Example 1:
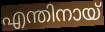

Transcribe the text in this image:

എന്തിനായ്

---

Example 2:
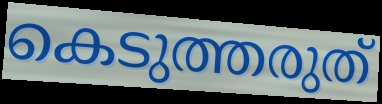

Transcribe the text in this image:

കെടുത്തരുത്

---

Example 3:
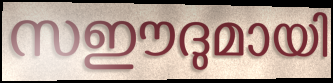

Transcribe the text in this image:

സഈദുമായി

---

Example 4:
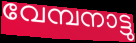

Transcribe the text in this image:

വേമ്പനാട്ടു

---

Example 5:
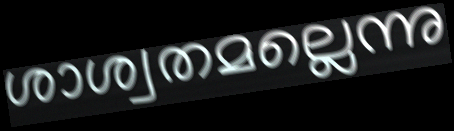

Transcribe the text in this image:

ശാശ്വതമല്ലെന്നു